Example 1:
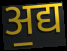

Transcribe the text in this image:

अ॒द्य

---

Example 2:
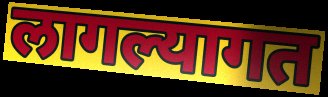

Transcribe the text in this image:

लागल्यागत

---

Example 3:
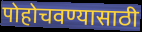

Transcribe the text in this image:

पोहोचवण्यासाठी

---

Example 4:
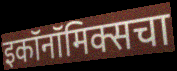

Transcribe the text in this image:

इकॉनॉमिक्सचा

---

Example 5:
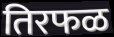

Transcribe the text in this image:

तिरफळ